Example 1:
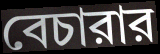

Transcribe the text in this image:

বেচারার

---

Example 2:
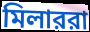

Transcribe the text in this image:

মিলাররা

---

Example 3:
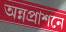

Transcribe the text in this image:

অন্নপ্রাশনে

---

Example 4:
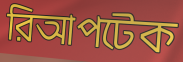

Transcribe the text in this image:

রিআপটেক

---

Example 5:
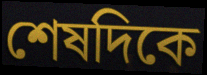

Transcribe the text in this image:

শেষদিকে